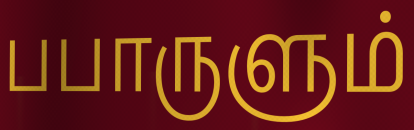
பபாருளும்